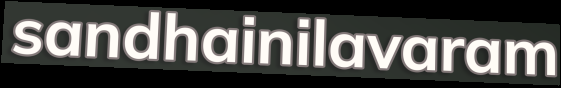
sandhainilavaram